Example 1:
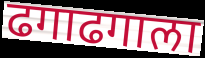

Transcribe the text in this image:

ढगाढगाला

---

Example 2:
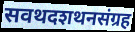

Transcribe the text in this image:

सवथदशथनसंग्रह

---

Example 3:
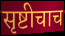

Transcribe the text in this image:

सृष्टीचाच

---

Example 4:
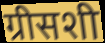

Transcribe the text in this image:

ग्रीसशी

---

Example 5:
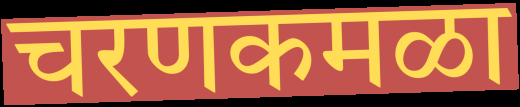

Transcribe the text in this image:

चरणकमळा